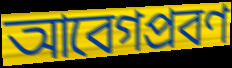
আবেগপ্রবণ